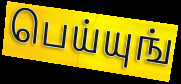
பெய்யுங்